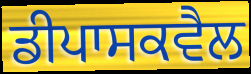
ਡੀਪਾਸਕਵੈਲ